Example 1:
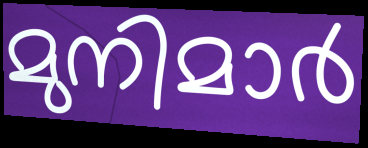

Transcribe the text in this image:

മുനിമാർ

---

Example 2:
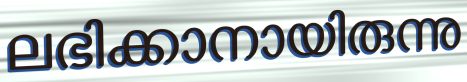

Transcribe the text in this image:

ലഭിക്കാനായിരുന്നു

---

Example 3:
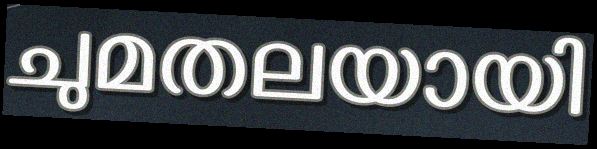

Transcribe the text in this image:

ചുമതലയായി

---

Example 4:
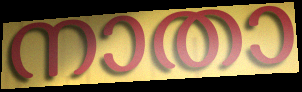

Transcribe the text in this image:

നാതാ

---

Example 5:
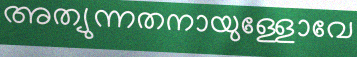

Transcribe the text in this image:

അത്യുന്നതനായുള്ളോവേ